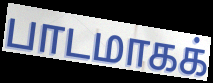
பாடமாகக்